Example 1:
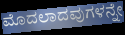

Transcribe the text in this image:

ಮೊದಲಾದವುಗಳನ್ನೇ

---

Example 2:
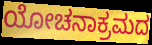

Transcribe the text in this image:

ಯೋಚನಾಕ್ರಮದ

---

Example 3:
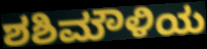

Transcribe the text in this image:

ಶಶಿಮೌಳಿಯ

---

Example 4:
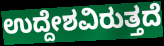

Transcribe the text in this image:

ಉದ್ದೇಶವಿರುತ್ತದೆ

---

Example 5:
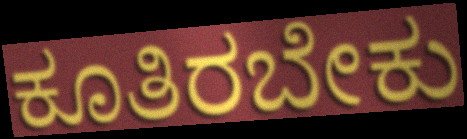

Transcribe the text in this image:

ಕೂತಿರಬೇಕು